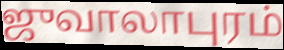
ஜுவாலாபுரம்